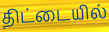
திட்டையில்